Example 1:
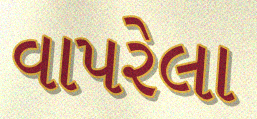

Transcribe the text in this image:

વાપરેલા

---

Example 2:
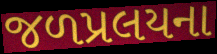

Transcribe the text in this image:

જળપ્રલયના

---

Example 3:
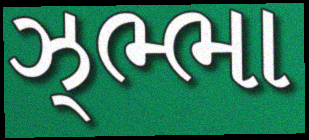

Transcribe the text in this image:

ઝ્ભ્ભા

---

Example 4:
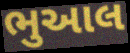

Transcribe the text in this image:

ભુઆલ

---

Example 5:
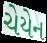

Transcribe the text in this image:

ચેયેન